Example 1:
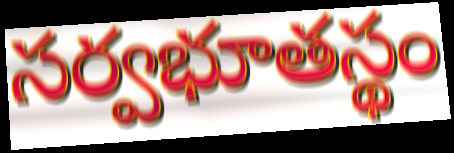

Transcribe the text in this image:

సర్వభూతస్థం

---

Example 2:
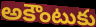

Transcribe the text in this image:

అకౌంటుకు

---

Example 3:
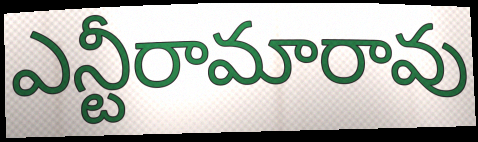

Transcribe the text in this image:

ఎన్టీరామారావు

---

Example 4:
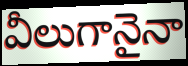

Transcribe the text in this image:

వీలుగానైనా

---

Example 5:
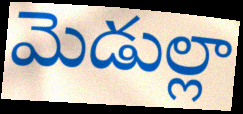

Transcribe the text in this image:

మెడుల్లా